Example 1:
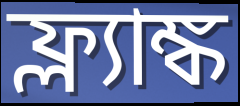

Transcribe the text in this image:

ফ্ল্যাঙ্ক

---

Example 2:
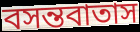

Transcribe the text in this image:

বসন্তবাতাস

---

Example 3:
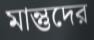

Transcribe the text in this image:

মান্তুদের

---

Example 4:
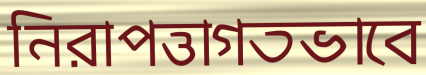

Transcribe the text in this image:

নিরাপত্তাগতভাবে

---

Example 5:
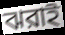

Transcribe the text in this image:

ঝরাই